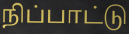
நிப்பாட்டு